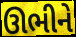
ઊભીને